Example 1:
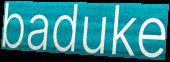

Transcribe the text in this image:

baduke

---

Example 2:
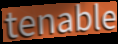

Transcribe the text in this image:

tenable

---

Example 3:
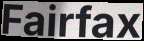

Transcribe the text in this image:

Fairfax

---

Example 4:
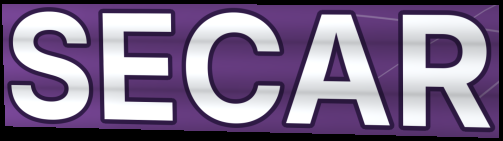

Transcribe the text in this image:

SECAR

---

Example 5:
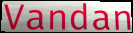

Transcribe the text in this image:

Vandan